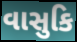
વાસુકિ